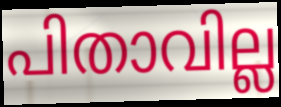
പിതാവില്ല